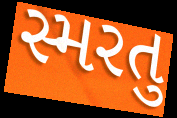
સ્મરતુ